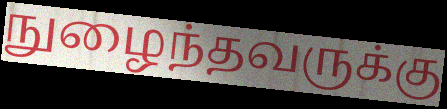
நுழைந்தவருக்கு